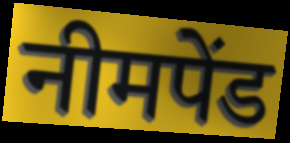
नीमपेंड